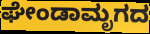
ಘೇಂಡಾಮೃಗದ